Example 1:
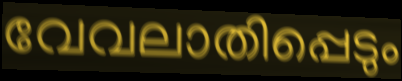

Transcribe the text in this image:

വേവലാതിപ്പെടും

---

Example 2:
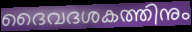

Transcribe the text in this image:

ദൈവദശകത്തിനും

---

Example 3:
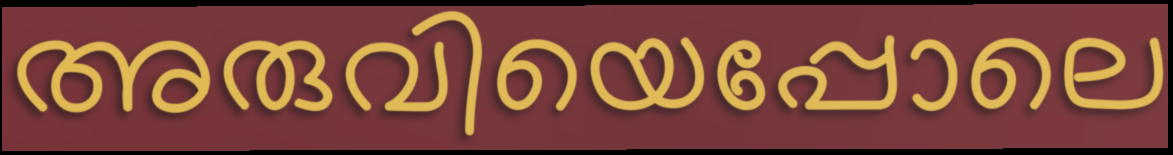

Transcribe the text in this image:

അരുവിയെപ്പോലെ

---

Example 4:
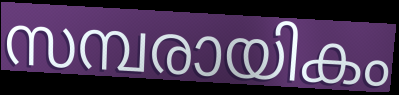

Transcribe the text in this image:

സമ്പരായികം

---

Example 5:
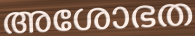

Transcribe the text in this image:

അശോഭത